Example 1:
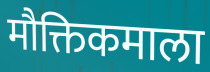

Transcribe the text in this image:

मौक्तिकमाला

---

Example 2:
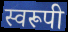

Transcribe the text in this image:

स्वरूपी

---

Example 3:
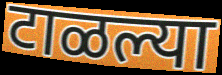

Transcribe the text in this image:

टाळल्या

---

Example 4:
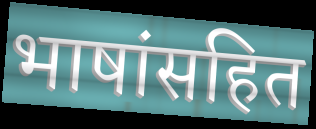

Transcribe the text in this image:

भाषांसहित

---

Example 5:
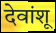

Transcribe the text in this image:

देवांशू